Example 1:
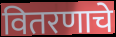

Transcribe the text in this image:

वितरणाचे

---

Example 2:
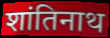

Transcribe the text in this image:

शांतिनाथ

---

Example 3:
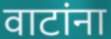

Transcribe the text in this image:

वाटांना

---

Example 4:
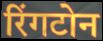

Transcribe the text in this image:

रिंगटोन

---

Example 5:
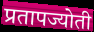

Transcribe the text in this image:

प्रतापज्योती